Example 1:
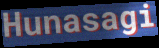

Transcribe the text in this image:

Hunasagi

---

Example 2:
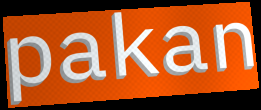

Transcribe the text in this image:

pakan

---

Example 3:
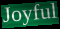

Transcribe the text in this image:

Joyful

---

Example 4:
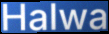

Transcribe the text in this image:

Halwa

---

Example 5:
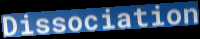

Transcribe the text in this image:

Dissociation